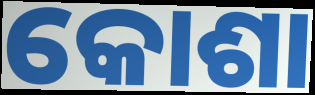
କୋଶା